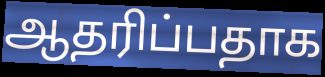
ஆதரிப்பதாக